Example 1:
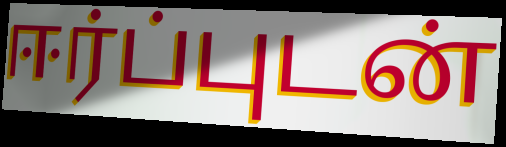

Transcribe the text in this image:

ஈர்ப்புடன்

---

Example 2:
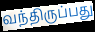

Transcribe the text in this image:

வந்திருப்பது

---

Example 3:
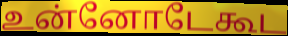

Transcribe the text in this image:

உன்னோடேகூட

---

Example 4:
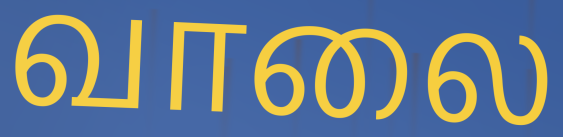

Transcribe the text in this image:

வாலை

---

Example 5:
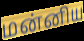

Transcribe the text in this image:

மன்னிய